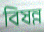
বিষন্ন